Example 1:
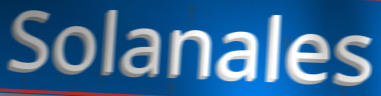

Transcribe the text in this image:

Solanales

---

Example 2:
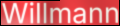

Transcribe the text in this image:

Willmann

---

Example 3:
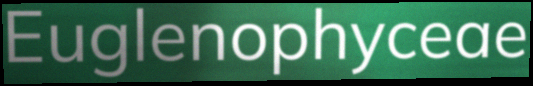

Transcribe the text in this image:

Euglenophyceae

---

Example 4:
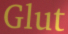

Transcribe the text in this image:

Glut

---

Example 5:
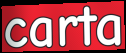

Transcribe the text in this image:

carta